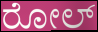
ರೋಲ್